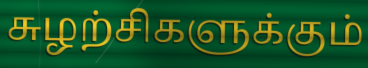
சுழற்சிகளுக்கும்